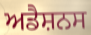
ਅਡੈਸ਼ਨਸ